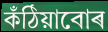
কঁঠিয়াবোৰ